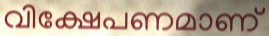
വിക്ഷേപണമാണ്